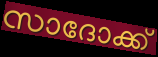
സാദോക്ക്